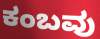
ಕಂಬವು